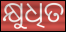
କ୍ଷୁଧିତ